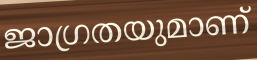
ജാഗ്രതയുമാണ്